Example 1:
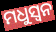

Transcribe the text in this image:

ମଧୁସ୍ୱନ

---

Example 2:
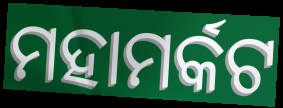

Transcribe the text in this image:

ମହାମର୍କଟ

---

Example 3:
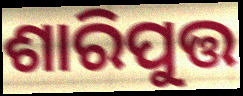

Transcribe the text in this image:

ଶାରିପୁତ୍ତ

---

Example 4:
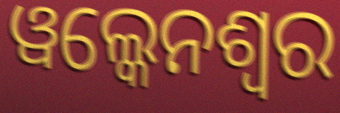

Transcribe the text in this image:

ୱଲ୍କେନଶ୍ୱର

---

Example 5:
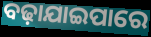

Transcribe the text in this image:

ବଢ଼ାଯାଇପାରେ